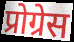
प्रोग्रेस